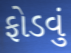
ફોડવું